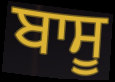
ਬਾਸੂ